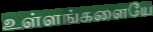
உள்ளங்களையே